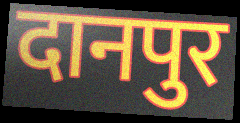
दानपुर